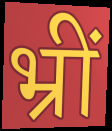
भ्रीं